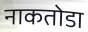
नाकतोडा